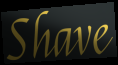
Shave